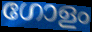
ഗോളം